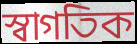
স্বাগতিক